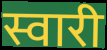
स्वारी